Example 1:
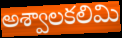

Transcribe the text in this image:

అశ్వాలకలిమి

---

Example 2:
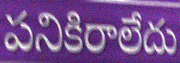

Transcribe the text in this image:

పనికిరాలేదు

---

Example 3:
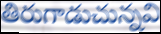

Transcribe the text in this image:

తిరుగాడుచున్నవి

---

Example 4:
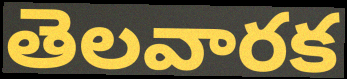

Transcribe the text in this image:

తెలవారక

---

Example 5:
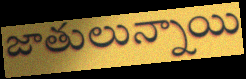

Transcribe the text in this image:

జాతులున్నాయి